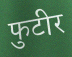
फुटीर